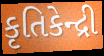
કૃતિકેન્દ્રી